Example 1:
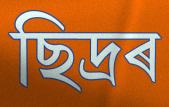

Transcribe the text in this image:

ছিদ্ৰৰ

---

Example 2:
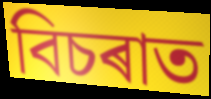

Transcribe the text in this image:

বিচৰাত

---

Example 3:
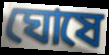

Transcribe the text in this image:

ঘোষে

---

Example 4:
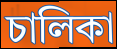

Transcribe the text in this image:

চালিকা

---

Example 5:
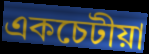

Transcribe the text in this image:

একচেটীয়া